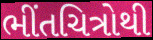
ભીંતચિત્રોથી